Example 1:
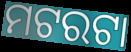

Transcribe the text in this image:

ମଟରଟା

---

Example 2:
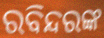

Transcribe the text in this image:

ରବିନ୍ଦରଙ୍କ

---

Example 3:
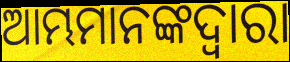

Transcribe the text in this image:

ଆମ୍ଭମାନଙ୍କଦ୍ୱାରା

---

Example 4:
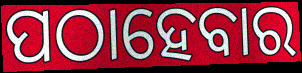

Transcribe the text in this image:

ପଠାହେବାର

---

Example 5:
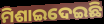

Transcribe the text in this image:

ମିଶାଇଦେଇଛି